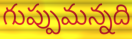
గుప్పుమన్నది